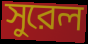
সুরেল